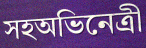
সহঅভিনেত্রী